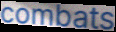
combats